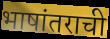
भाषांतराची